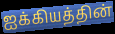
ஐக்கியத்தின்